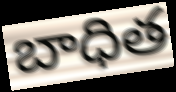
బాధిత